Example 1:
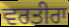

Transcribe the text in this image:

ਵਰਤੀਰਾ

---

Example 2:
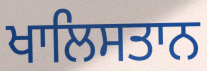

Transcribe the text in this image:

ਖਾਲਿਸਤਾਨ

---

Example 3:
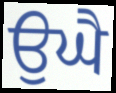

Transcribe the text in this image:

ਉਘੈ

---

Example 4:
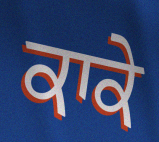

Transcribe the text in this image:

ਕਾਕੇ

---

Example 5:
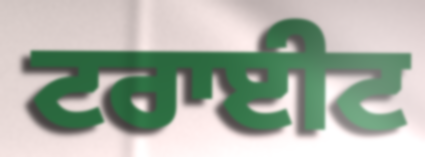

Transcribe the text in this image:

ਟਰਾਈਟ